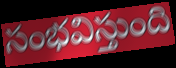
సంభవిస్తుంది